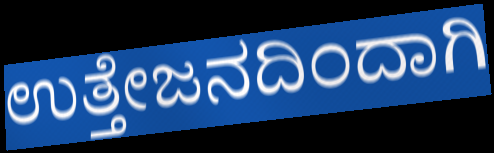
ಉತ್ತೇಜನದಿಂದಾಗಿ